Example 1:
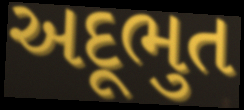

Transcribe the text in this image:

અદૂભુત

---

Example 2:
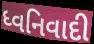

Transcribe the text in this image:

ધ્વનિવાદી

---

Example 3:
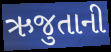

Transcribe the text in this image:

ઋજુતાની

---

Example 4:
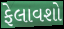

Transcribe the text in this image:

ફેલાવશો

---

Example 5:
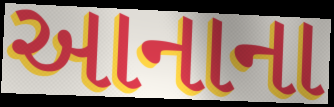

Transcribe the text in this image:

આનાના